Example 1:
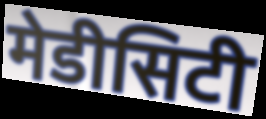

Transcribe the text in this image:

मेडीसिटी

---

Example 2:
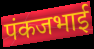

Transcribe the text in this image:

पंकजभाई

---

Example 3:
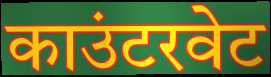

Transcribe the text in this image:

काउंटरवेट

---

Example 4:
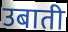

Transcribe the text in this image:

उबाती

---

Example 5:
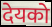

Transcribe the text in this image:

देयको